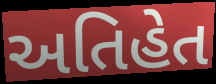
અતિહેત